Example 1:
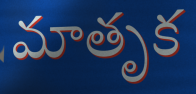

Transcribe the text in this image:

మాతృక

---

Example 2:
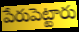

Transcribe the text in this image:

పేరుపెట్టారు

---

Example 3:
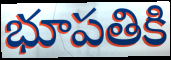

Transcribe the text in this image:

భూపతికి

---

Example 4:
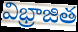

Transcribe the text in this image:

విభ్రాజిత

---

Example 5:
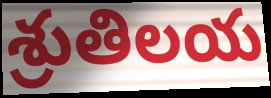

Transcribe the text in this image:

శ్రుతిలయ